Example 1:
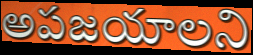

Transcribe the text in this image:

అపజయాలని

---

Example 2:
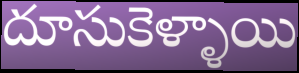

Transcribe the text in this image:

దూసుకెళ్ళాయి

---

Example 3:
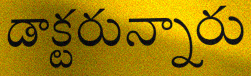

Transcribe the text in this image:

డాక్టరున్నారు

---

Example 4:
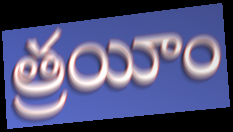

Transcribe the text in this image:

త్రయీం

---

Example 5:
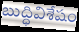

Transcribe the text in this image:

బుద్ధివిశేషం